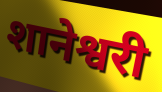
शानेश्वरी